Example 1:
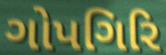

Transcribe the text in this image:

ગોપગિરિ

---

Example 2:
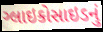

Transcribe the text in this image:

ગ્લાઇકોસાઇડનું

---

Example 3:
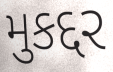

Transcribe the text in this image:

મુકદ્દર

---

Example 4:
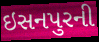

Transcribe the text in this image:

ઇસનપુરની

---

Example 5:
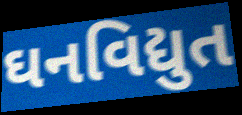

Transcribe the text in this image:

ઘનવિદ્યુત